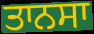
ਤਾਨਸਾ